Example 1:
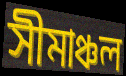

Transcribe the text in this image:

সীমাঞ্চল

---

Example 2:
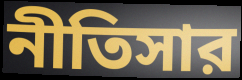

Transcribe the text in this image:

নীতিসার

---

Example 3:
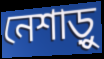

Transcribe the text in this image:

নেশাড়ু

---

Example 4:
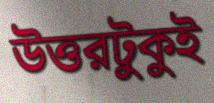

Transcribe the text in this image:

উত্তরটুকুই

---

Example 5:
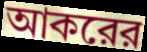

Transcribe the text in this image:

আকরের